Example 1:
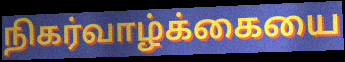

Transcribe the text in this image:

நிகர்வாழ்க்கையை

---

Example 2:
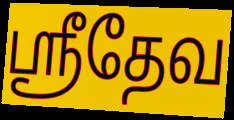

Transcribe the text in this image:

ஸ்ரீதேவ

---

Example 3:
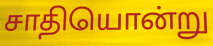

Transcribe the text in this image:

சாதியொன்று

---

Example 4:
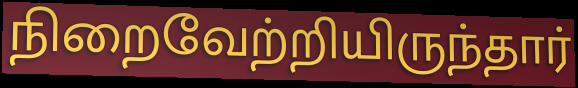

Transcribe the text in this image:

நிறைவேற்றியிருந்தார்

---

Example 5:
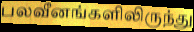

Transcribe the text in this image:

பலவீனங்களிலிருந்து